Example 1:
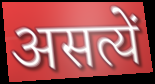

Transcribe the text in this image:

असत्यें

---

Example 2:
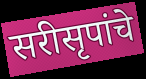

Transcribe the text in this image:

सरीसृपांचे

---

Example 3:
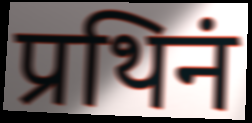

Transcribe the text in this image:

प्रथिनं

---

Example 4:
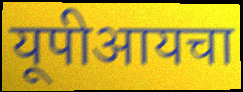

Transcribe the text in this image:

यूपीआयचा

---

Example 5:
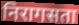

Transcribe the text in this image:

निरागसता